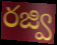
రజ్వి